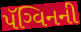
પૅંગ્વિનની